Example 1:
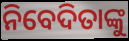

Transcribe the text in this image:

ନିବେଦିତାଙ୍କୁ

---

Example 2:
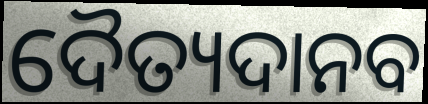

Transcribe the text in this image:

ଦୈତ୍ୟଦାନବ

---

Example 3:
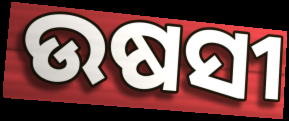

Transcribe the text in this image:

ଉଷସୀ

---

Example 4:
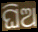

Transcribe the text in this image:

ଘିଅ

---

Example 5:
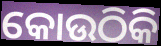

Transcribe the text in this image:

କୋଉଠିକି